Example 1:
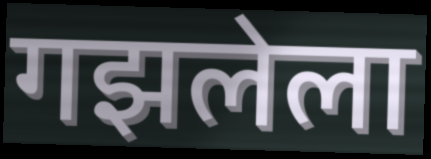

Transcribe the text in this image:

गझलेला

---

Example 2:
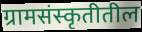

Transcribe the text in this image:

ग्रामसंस्कृतीतील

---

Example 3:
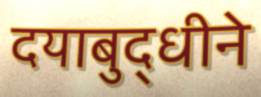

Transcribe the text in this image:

दयाबुद्धीने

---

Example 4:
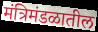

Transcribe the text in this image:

मंत्रिमंडळातील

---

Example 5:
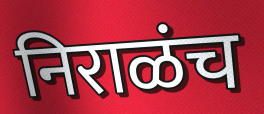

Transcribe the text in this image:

निराळंच